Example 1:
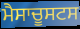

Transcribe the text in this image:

ਮੈਸਾਚੂਸਟਸ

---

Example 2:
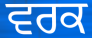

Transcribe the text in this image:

ਵਰਕ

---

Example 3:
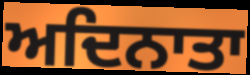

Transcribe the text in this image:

ਅਦਿਨਾਤਾ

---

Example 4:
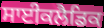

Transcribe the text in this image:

ਸਾਈਕਲੈਡਿਕ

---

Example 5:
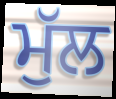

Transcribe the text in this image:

ਮੁੱਲ